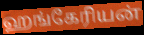
ஹங்கேரியன்